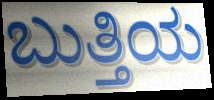
ಬುತ್ತಿಯ